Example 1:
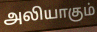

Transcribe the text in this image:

அலியாகும்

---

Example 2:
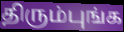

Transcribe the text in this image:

திரும்புங்க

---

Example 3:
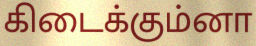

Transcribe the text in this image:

கிடைக்கும்னா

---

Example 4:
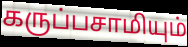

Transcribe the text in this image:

கருப்பசாமியும்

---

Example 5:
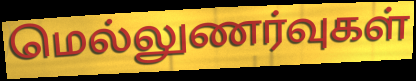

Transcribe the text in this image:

மெல்லுணர்வுகள்